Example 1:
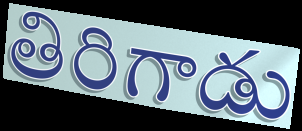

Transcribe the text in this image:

తిరిగాడు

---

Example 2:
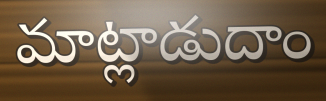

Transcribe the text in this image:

మాట్లాడుదాం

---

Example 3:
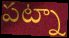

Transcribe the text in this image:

పట్నా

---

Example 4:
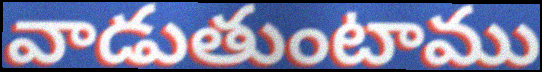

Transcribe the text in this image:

వాడుతుంటాము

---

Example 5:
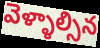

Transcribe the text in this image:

వెళ్ళాల్సిన